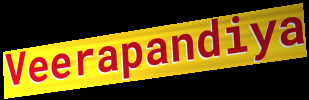
Veerapandiya